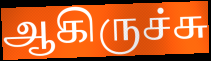
ஆகிருச்சு